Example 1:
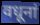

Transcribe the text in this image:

वधूनां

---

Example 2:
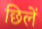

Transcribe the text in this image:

छिलें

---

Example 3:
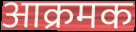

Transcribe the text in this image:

आक्रमक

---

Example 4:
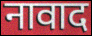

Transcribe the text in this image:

नावाद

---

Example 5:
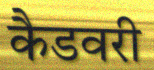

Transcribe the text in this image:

कैडवरी